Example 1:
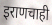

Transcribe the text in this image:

इराणचाही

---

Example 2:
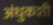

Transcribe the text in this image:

अंधुकशी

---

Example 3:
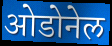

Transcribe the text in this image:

ओडोनेल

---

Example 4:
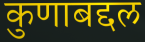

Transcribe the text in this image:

कुणाबद्दल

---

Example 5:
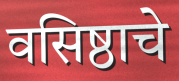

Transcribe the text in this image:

वसिष्ठाचे